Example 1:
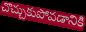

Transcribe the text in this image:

చొచ్చుకుపోవడానికి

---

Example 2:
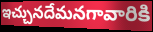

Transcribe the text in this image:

ఇచ్చునదేమనగావారికి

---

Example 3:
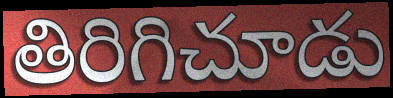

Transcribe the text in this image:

తిరిగిచూడు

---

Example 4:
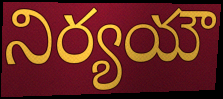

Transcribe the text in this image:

నిర్యయౌ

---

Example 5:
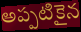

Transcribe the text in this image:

అప్పటికైన